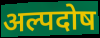
अल्पदोष